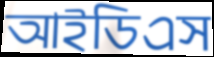
আইডিএস